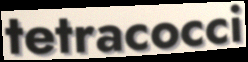
tetracocci